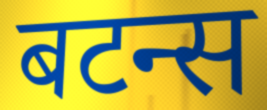
बटन्स